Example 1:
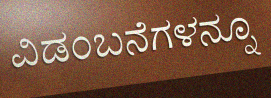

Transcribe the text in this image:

ವಿಡಂಬನೆಗಳನ್ನೂ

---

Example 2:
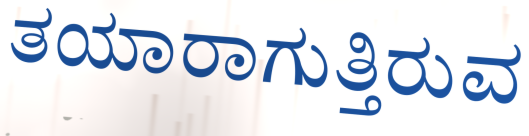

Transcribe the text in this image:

ತಯಾರಾಗುತ್ತಿರುವ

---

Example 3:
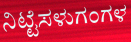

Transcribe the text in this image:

ನಿಟ್ಟೆಸಳುಗಂಗಳ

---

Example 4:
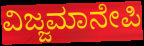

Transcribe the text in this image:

ವಿಜ್ಜಮಾನೇಪಿ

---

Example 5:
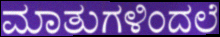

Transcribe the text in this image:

ಮಾತುಗಳಿಂದಲೆ